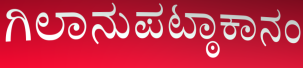
ಗಿಲಾನುಪಟ್ಠಾಕಾನಂ